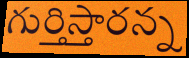
గుర్తిస్తారన్న